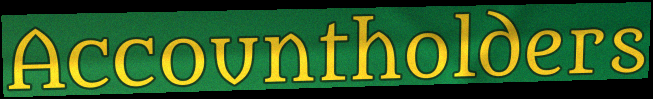
Accountholders